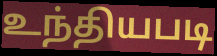
உந்தியபடி